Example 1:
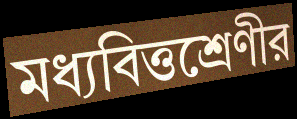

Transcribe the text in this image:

মধ্যবিত্তশ্রেণীর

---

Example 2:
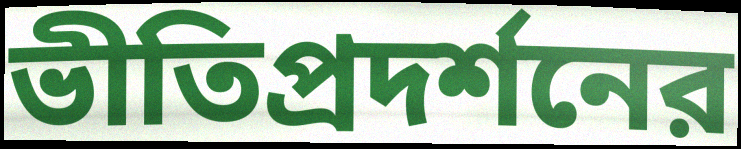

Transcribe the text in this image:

ভীতিপ্রদর্শনের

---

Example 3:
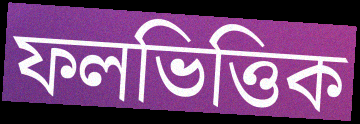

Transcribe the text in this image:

ফলভিত্তিক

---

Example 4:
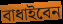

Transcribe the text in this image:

বাধাইবেন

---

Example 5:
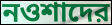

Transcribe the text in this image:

নওশাদের